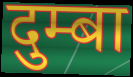
दुम्बा